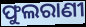
ଫୁଲରାଣୀ